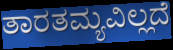
ತಾರತಮ್ಯವಿಲ್ಲದೆ